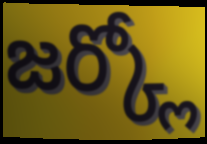
జర్క్లో